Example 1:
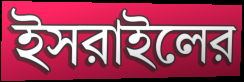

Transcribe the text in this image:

ইসরাইলের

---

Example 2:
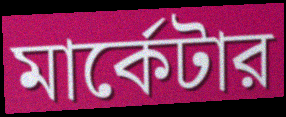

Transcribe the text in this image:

মার্কেটার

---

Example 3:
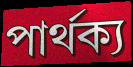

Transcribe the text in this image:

পার্থক্য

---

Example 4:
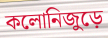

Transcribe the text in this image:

কলোনিজুড়ে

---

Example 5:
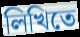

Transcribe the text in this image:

লিখিতে